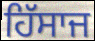
ਹਿੱਸਾਜ